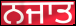
ਨਜਾਤ